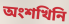
অংশখিনি